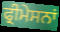
ਫ੍ਰੀਮੇਸਨਾਂ